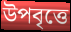
উপবৃত্তে